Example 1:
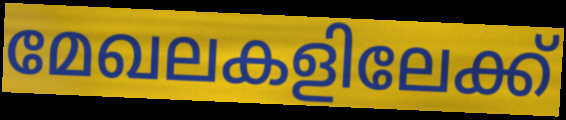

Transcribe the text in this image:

മേഖലകളിലേക്ക്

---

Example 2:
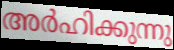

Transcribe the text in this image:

അർഹിക്കുന്നു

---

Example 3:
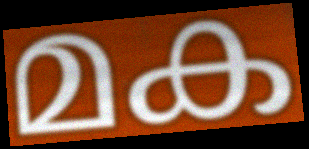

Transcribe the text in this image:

മക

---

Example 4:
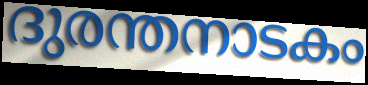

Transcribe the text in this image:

ദുരന്തനാടകം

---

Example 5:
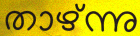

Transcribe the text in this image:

താഴ്ന്നു